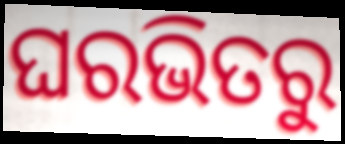
ଘରଭିତରୁ